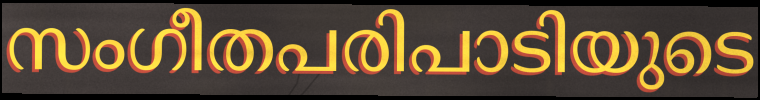
സംഗീതപരിപാടിയുടെ